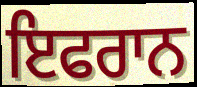
ਇਫਰਾਨ